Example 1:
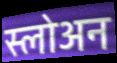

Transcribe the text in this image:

स्लोअन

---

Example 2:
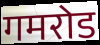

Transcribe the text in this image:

गमरोड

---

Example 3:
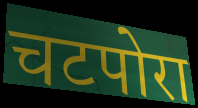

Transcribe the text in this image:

चटपोरा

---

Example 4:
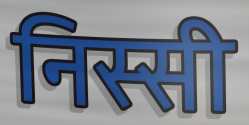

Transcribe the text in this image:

निस्सी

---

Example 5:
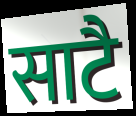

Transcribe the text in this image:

साटै